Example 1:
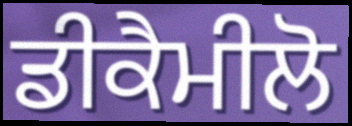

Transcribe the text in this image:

ਡੀਕੈਮੀਲੋ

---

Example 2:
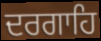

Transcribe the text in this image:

ਦਰਗਾਹਿ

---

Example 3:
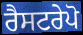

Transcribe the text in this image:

ਰੈਸਟਰੇਪੋ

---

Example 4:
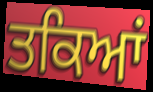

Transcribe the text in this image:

ਤਕਿਆਂ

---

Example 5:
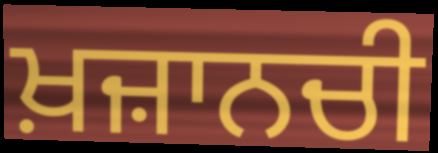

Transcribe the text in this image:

ਖ਼ਜ਼ਾਨਚੀ